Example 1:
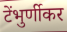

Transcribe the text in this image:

टेंभुर्णीकर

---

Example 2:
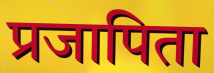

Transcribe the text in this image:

प्रजापिता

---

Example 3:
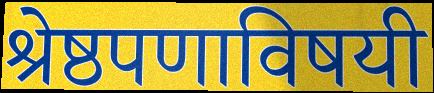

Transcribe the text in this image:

श्रेष्ठपणाविषयी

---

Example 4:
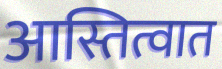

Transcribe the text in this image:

आस्तित्वात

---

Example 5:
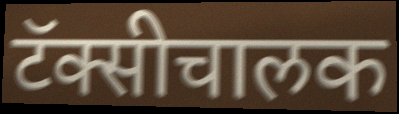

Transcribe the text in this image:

टॅक्सीचालक